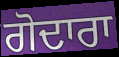
ਗੋਦਾਰਾ